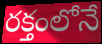
రక్తంలోనే